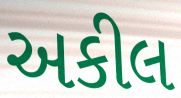
અકીલ